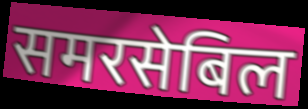
समरसेबिल